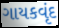
ગાયકવૃંદ